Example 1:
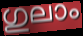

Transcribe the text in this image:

ഗുലാം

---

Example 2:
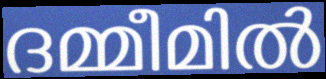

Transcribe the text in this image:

ദമ്മീമിൽ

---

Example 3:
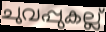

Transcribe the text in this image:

ചുവപ്പുകല്ല്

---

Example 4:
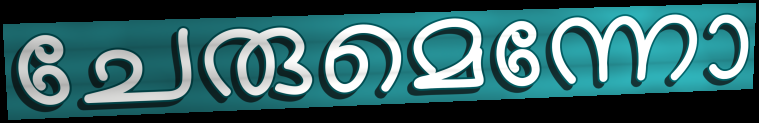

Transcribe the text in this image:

ചേരുമെന്നോ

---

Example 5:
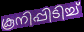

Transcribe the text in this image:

കൂനിപ്പിടിച്ച്